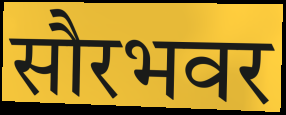
सौरभवर